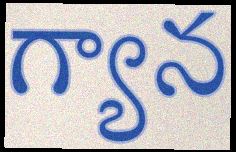
గ్యాన